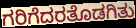
ಗರಿಗೆದರತೊಡಗಿತು